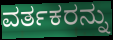
ವರ್ತಕರನ್ನು